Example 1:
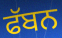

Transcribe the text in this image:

ਫੱਬਨ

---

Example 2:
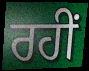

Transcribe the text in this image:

ਰਹੀਂ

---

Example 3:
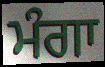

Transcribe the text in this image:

ਮੰਗਾ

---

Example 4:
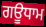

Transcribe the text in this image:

ਗਊਧਾਮ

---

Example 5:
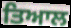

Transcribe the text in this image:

ਤਿਆਲ